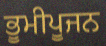
ਭੂਮੀਪੂਜਨ